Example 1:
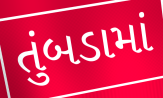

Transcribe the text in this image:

તુંબડામાં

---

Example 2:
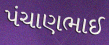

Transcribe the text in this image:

પંચાણભાઈ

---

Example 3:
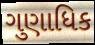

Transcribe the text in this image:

ગુણાધિક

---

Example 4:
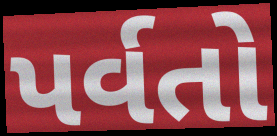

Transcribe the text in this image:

પર્વતો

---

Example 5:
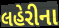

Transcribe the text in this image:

લહેરીના